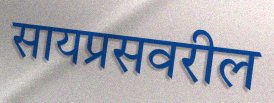
सायप्रसवरील